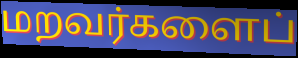
மறவர்களைப்